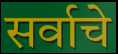
सर्वाचे